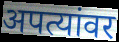
अपत्यांवर